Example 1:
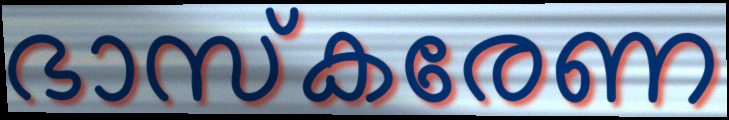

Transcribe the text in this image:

ഭാസ്കരേണ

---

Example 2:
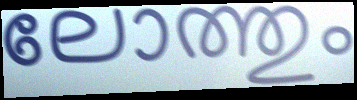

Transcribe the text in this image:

ലോത്തും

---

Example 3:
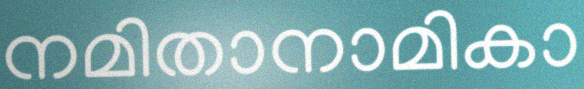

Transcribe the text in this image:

നമിതാനാമികാ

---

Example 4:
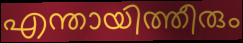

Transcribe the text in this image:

എന്തായിത്തീരും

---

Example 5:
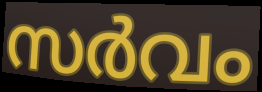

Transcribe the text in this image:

സർവം